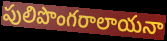
పులిపొంగరాలాయనా